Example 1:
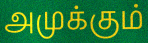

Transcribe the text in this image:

அமுக்கும்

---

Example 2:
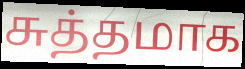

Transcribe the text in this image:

சுத்தமாக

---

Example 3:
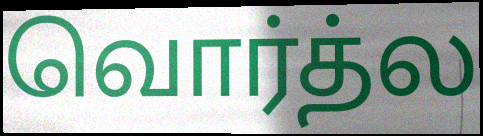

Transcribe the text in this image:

வொர்த்ல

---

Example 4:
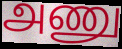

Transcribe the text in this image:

அணு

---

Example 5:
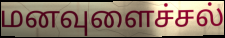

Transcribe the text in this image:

மனவுளைச்சல்